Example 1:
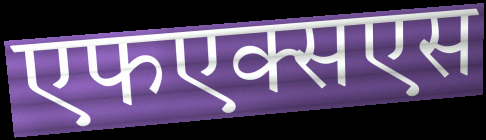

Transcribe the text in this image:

एफएक्सएस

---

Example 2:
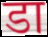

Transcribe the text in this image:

डा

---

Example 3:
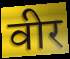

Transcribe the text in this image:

वीर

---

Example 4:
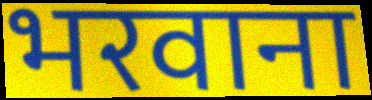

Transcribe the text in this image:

भरवाना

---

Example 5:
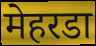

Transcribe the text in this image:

मेहरडा